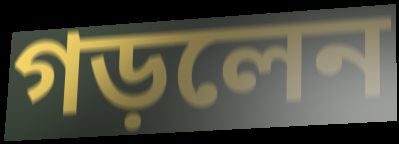
গড়লেন